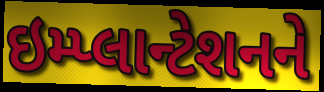
ઇમ્પ્લાન્ટેશનને